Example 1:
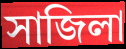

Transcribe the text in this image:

সাজিলা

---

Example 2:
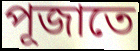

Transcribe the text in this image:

পূজাতে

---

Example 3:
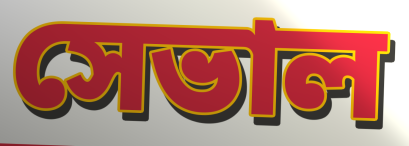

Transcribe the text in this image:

সেভাল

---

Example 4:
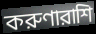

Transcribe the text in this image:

করুণারাশি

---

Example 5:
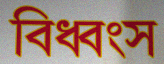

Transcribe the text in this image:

বিধ্বংস